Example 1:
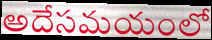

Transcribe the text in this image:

అదేసమయంలో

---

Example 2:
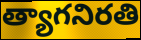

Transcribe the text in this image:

త్యాగనిరతి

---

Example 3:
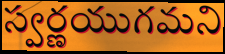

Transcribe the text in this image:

స్వర్ణయుగమని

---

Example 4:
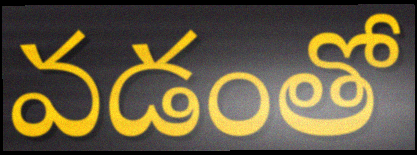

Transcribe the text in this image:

వడంతో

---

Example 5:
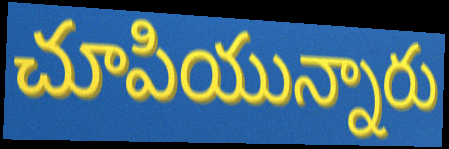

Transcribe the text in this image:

చూపియున్నారు